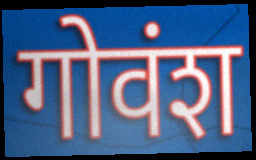
गोवंश